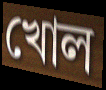
খোল